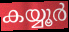
കയ്യൂർ